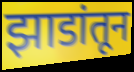
झाडांतून